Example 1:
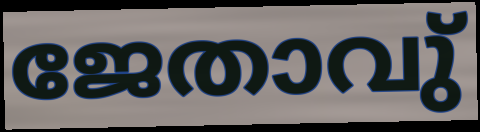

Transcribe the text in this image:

ജേതാവു്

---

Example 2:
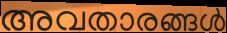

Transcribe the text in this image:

അവതാരങ്ങൾ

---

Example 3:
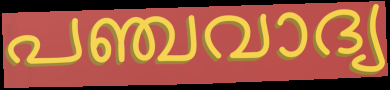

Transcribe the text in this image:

പഞ്ചവാദ്യ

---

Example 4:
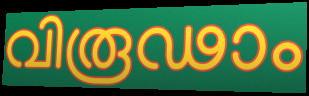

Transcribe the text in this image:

വിരൂഢാം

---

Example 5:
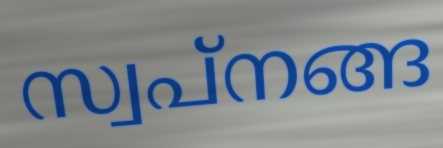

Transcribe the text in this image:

സ്വപ്നങ്ങ